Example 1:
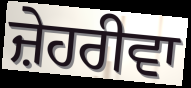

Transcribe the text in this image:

ਜ਼ੇਹਰੀਵਾ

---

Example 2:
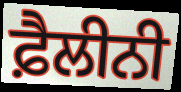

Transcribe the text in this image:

ਫ਼ੈਲੀਨੀ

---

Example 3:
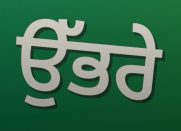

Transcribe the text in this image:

ਉੱਭਰੇ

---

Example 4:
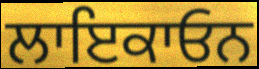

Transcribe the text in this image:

ਲਾਇਕਾਓਨ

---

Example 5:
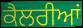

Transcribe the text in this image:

ਕੈਲਰੀਆਂ